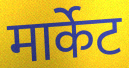
मार्केट